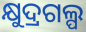
କ୍ଷୁଦ୍ରଗଲ୍ପ